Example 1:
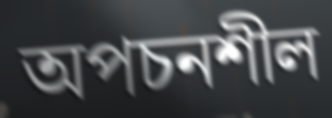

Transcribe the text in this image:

অপচনশীল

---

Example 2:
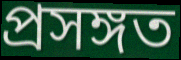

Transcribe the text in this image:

প্রসঙ্গত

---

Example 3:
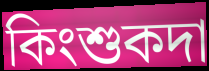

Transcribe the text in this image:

কিংশুকদা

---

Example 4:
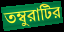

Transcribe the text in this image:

তম্বুরাটির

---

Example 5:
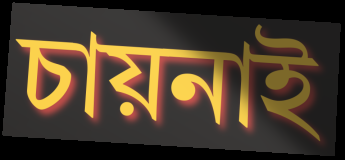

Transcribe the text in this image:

চায়নাই